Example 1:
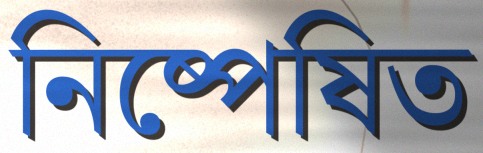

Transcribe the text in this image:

নিষ্পেষিত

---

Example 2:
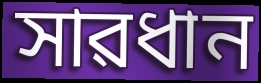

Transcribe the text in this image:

সাৱধান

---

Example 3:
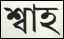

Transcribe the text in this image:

শ্বাহ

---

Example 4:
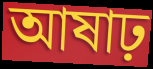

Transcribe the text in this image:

আষাঢ়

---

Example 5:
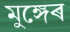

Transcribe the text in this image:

মুঙ্গেৰ